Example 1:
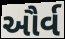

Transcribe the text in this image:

ઔર્વ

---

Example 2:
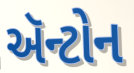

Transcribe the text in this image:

ઍન્ટોન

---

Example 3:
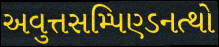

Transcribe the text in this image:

અવુત્તસમ્પિણ્ડનત્થો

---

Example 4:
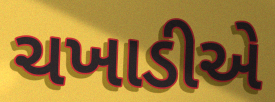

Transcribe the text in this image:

ચખાડીએ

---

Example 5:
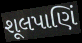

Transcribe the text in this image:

શૂલપાણિં